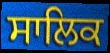
ਸਾਲਿਕ